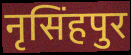
नृसिंहपुर